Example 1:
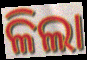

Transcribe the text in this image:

ଳିଲା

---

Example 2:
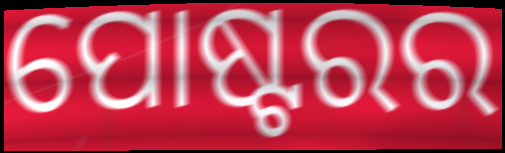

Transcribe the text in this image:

ପୋଷ୍ଟରର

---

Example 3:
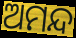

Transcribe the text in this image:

ଅମନ୍ଦ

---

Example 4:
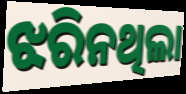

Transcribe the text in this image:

ଝରିନଥିଲା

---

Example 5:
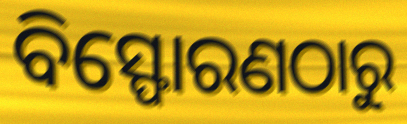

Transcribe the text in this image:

ବିସ୍ଫୋରଣଠାରୁ